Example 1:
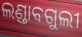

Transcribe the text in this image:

ଲଣ୍ଡାବଗୁଲୀ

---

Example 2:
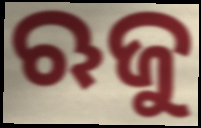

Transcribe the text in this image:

ଋଜୁ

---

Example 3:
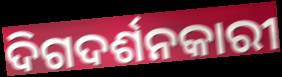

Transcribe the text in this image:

ଦିଗଦର୍ଶନକାରୀ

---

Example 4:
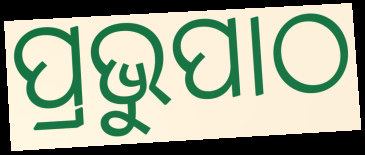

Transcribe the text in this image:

ପ୍ରଭୁପାଠ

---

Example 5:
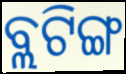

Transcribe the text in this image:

ବ୍ଲଟିଙ୍ଗ